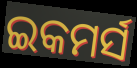
ଇକମର୍ସ